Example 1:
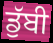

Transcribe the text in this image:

ਡੁੱਬੀ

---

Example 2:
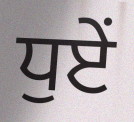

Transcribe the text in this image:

ਧੁਏਂ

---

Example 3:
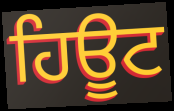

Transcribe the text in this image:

ਹਿਊਟ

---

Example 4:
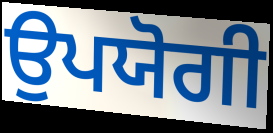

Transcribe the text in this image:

ਉਪਯੋਗੀ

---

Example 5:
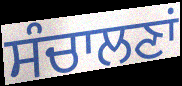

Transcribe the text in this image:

ਸੰਚਾਲਣਾਂ